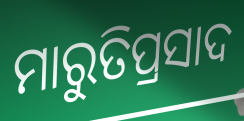
ମାରୁତିପ୍ରସାଦ